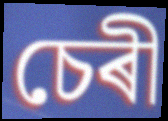
চেৰী